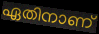
ഏതിനാണ്